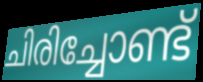
ചിരിച്ചോണ്ട്